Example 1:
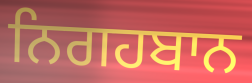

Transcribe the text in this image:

ਨਿਗਹਬਾਨ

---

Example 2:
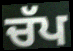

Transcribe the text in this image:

ਚੱਪ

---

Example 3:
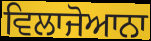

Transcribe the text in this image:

ਵਿਲਾਜੋਆਨਾ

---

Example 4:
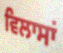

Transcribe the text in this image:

ਵਿਲਾਸਾਂ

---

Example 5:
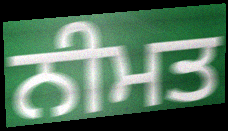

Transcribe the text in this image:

ਨੀਮਤ